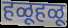
हळूहळू